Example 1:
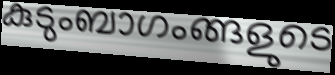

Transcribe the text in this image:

കുടുംബാഗംങ്ങളുടെ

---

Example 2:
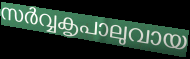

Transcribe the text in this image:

സർവ്വകൃപാലുവായ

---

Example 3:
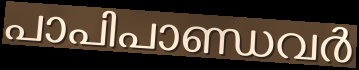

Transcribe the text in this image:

പാപിപാണ്ഡവർ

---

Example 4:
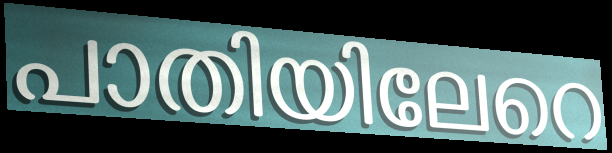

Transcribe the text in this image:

പാതിയിലേറെ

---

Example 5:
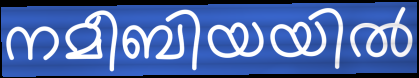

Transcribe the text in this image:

നമീബിയയിൽ